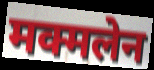
मक्मलेन